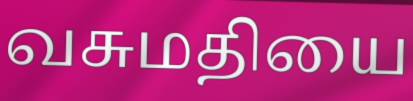
வசுமதியை